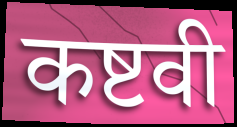
कष्टवी